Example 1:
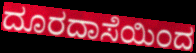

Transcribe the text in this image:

ದೂರದಾಸೆಯಿಂದ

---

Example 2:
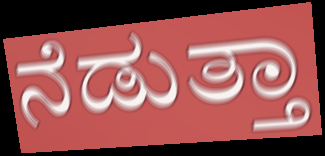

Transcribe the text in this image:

ನೆಡುತ್ತಾ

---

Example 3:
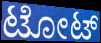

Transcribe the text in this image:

ಟೋಟ್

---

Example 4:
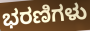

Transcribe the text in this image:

ಭರಣಿಗಳು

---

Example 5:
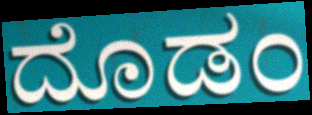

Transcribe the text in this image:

ದೊಡಂ